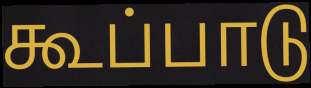
கூப்பாடு